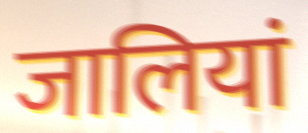
जालियां